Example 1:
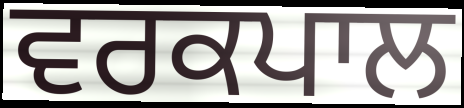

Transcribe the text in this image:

ਵਰਕਪਾਲ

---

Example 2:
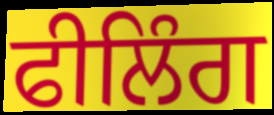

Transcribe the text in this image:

ਫੀਲਿੰਗ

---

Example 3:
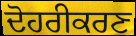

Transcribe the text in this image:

ਦੋਹਰੀਕਰਣ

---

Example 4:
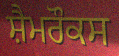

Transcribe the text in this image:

ਸ਼ੈਮਰੌਕਸ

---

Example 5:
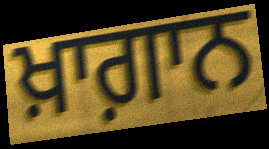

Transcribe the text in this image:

ਖ਼ਾਗ਼ਾਨ